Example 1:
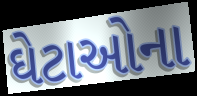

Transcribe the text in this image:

ઘેટાઓના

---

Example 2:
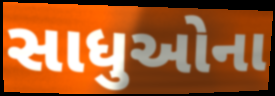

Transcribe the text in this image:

સાધુઓના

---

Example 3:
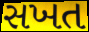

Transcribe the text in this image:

સખત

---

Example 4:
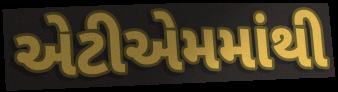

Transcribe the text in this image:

એટીએમમાંથી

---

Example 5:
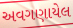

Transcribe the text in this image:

અવગણાયેલ